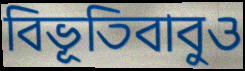
বিভূতিবাবুও